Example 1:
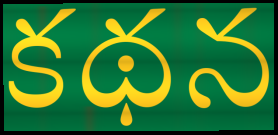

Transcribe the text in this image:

కథన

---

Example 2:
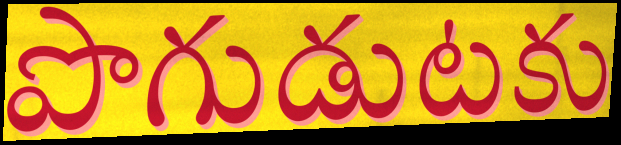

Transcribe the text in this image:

పొగుడుటకు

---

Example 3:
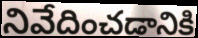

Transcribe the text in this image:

నివేదించడానికి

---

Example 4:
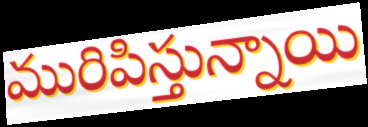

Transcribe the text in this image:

మురిపిస్తున్నాయి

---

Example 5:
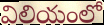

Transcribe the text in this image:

విలియంలో